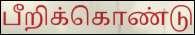
பீறிக்கொண்டு